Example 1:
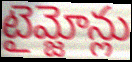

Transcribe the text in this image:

టైమ్జోన్లు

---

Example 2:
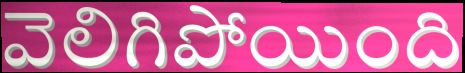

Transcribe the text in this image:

వెలిగిపోయింది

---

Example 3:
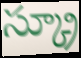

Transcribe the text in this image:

స్క్రూ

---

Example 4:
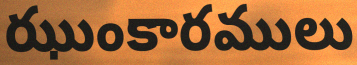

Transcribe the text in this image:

ఝుంకారములు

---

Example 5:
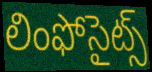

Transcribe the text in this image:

లింఫోసైట్స్